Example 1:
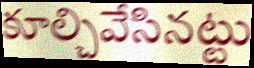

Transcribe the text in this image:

కూల్చివేసినట్టు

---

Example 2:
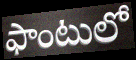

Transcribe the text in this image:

ఫాంటులో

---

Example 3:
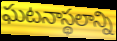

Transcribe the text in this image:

ఘటనాస్థలాన్ని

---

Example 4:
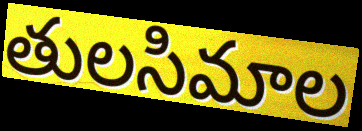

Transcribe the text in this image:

తులసిమాల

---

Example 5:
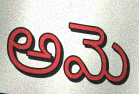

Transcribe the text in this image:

అమె